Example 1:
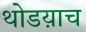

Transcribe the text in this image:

थोडय़ाच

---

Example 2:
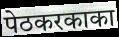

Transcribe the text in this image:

पेठकरकाका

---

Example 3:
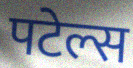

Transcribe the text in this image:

पटेल्स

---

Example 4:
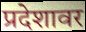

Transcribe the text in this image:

प्रदेशावर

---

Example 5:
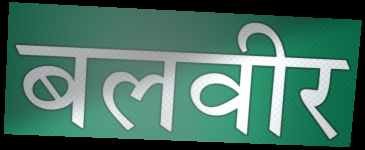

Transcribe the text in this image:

बलवीर